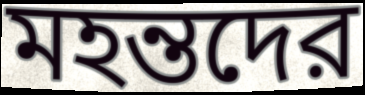
মহন্তদের